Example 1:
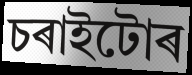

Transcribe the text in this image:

চৰাইটোৰ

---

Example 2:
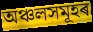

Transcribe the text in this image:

অঞ্চলসমূহৰ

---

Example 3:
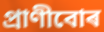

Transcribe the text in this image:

প্ৰাণীবোৰ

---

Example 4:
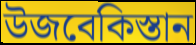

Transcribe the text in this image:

উজবেকিস্তান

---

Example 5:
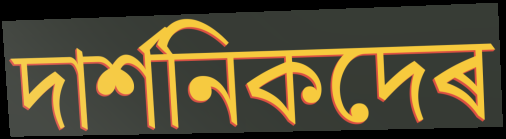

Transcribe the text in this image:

দাৰ্শনিকদেৰ